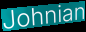
Johnian